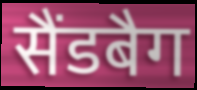
सैंडबैग